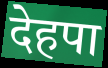
देहपा